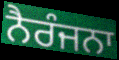
ਨੈਰੰਜਨਾ